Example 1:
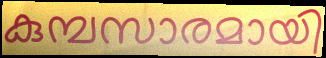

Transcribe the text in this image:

കുമ്പസാരമായി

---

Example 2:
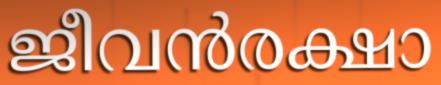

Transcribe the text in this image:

ജീവൻരക്ഷാ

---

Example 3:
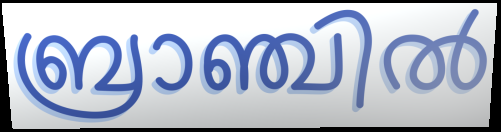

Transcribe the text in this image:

ബ്രാഞ്ചിൽ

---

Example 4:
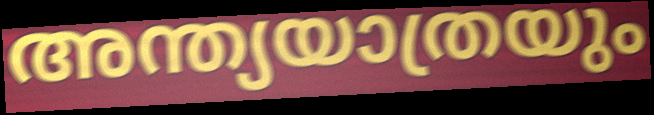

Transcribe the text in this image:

അന്ത്യയാത്രയും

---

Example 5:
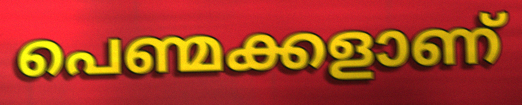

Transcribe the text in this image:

പെണ്മക്കളാണ്